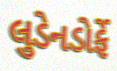
લુડેનડોર્ફે